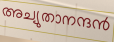
അച്യുതാനന്ദൻ